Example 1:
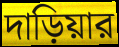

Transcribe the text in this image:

দাড়িয়ার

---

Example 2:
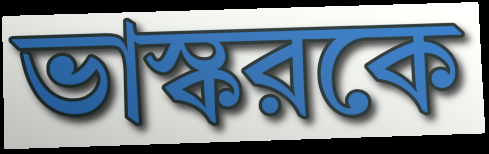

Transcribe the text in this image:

ভাস্করকে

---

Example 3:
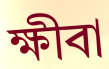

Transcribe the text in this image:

ক্ষীবা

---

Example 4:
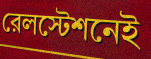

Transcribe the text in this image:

রেলস্টেশনেই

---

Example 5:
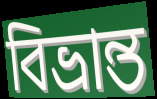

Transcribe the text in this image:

বিভ্রান্ত